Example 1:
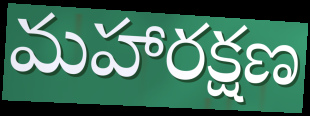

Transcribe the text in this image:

మహారక్షణ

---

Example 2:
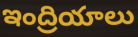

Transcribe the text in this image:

ఇంద్రియాలు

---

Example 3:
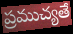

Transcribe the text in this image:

ప్రముచ్యతే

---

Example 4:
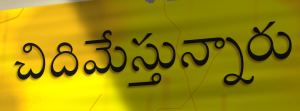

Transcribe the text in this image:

చిదిమేస్తున్నారు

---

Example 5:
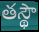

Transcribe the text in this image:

తస్థౌ